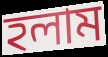
হলাম